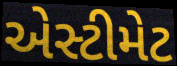
એસ્ટીમેટ